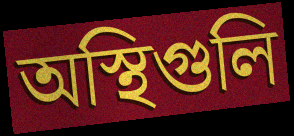
অস্থিগুলি